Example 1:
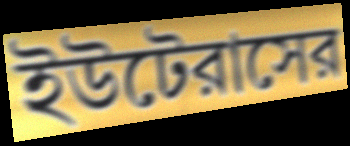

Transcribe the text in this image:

ইউটেরাসের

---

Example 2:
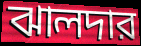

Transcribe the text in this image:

ঝালদার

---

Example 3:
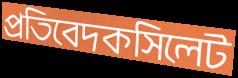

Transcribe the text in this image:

প্রতিবেদকসিলেট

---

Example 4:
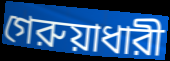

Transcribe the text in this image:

গেরুয়াধারী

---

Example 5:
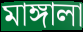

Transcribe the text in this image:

মাঙ্গালা